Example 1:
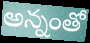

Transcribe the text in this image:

అన్నంతో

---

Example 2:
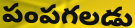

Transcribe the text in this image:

పంపగలడు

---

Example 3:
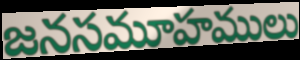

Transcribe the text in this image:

జనసమూహములు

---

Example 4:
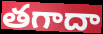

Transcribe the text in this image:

తగాదా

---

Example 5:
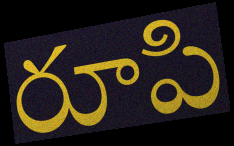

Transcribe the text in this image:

రూపి